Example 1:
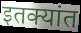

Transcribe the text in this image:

इतक्यांत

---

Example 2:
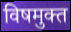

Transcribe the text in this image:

विषमुक्त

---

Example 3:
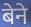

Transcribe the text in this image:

बेने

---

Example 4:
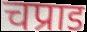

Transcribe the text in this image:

चप्राड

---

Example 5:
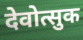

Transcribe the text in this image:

देवोत्सुक